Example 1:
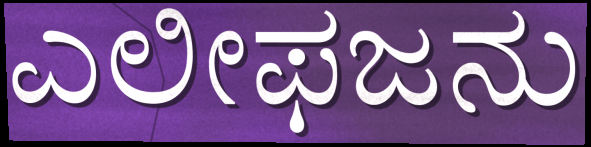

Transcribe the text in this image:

ಎಲೀಫಜನು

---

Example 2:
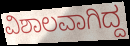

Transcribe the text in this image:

ವಿಶಾಲವಾಗಿದ್ದ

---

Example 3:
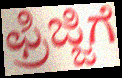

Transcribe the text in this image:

ಫ್ರಿಜ್ಜಿಗೆ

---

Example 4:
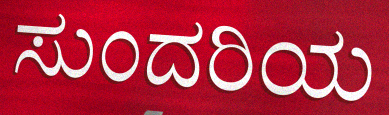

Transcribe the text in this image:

ಸುಂದರಿಯ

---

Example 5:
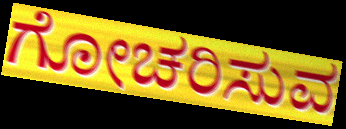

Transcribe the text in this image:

ಗೋಚರಿಸುವ